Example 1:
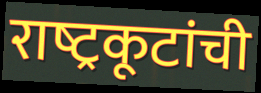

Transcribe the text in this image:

राष्ट्रकूटांची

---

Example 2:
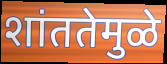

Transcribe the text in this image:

शांततेमुळे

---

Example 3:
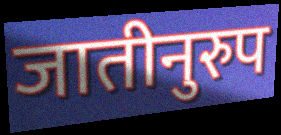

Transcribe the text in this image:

जातीनुरुप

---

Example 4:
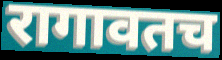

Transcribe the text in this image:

रागावतच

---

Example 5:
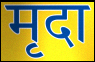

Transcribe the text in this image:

मृदा